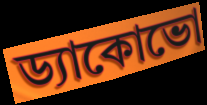
ড্যাকোভো